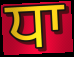
ਧਾ